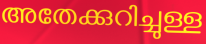
അതേക്കുറിച്ചുള്ള